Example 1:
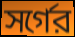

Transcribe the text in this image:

সর্গের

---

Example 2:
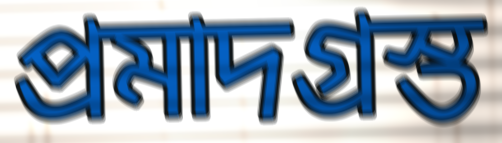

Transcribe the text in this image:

প্রমাদগ্রস্ত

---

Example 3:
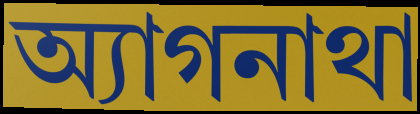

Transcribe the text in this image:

অ্যাগনাথা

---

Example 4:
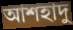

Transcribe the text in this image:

আশহাদু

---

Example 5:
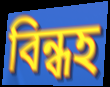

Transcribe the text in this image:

বিন্ধহ